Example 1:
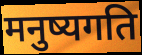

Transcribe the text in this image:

मनुष्यगति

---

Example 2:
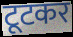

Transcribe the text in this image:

टूटकर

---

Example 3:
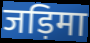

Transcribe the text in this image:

जड़िमा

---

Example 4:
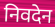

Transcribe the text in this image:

निवदेन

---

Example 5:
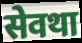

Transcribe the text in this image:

सेवथा